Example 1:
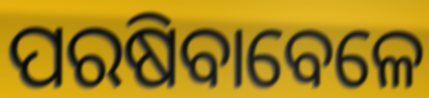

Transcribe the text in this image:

ପରଷିବାବେଳେ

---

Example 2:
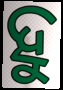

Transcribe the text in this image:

ହୁ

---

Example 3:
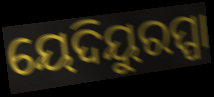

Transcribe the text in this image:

ୟେଦିୟୁରପ୍ପା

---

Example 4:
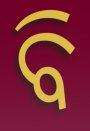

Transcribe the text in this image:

ବି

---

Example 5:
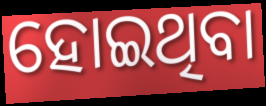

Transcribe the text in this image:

ହୋଇଥିବା